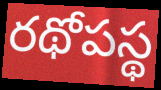
రథోపస్థ